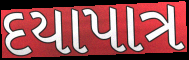
દયાપાત્ર